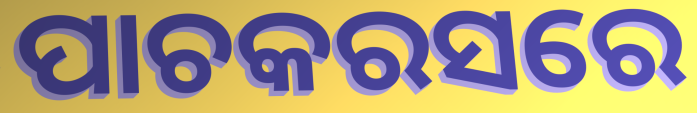
ପାଚକରସରେ